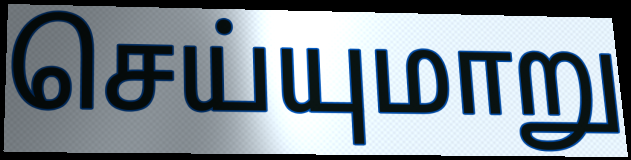
செய்யுமாறு